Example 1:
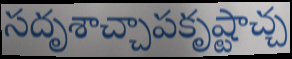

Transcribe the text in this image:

సదృశాచ్చాపకృష్టాచ్చ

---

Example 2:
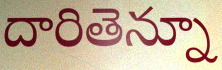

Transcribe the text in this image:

దారితెన్నూ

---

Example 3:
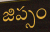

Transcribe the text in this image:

జిప్సం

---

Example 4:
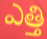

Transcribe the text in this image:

ఎత్తి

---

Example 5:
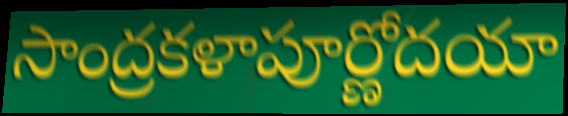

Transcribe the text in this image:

సాంద్రకళాపూర్ణోదయా